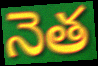
నెత